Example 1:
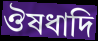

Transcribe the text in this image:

ঔষধাদি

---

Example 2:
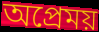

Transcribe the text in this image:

অপ্রেময়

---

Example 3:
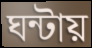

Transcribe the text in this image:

ঘন্টায়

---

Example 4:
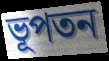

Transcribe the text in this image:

ভূপতন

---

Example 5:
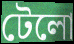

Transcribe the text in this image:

টেলো